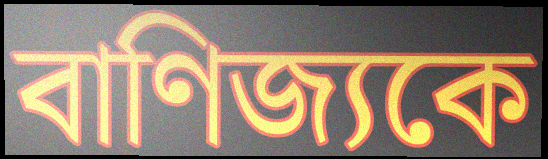
বাণিজ্যকে